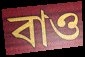
বাও